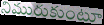
నిమురుకుంటూ